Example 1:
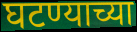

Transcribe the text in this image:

घटण्याच्या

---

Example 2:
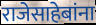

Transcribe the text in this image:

राजेसाहेबांना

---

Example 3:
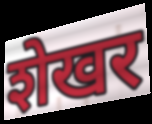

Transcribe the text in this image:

शेखर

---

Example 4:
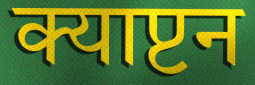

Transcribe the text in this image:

क्याप्टन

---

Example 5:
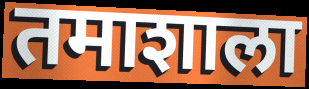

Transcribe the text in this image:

तमाशाला